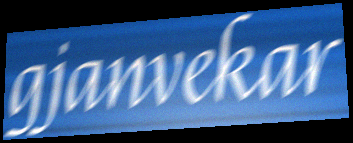
gjanvekar